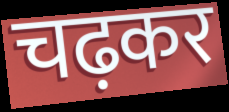
चढ़कर